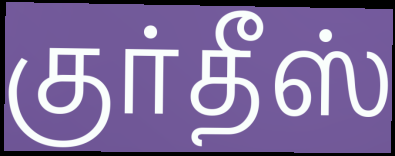
குர்தீஸ்